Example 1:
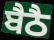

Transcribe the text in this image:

ਬੈਠੈ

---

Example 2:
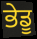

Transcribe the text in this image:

ਭੇਡੂ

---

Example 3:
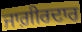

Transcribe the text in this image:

ਜਾਗ਼ੀਰਦਾਰ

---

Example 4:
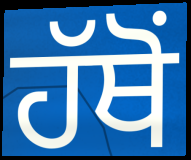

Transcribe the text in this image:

ਹੱਥੋਂ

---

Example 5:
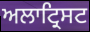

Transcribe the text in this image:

ਅਲਾਟ੍ਰਿਸਟ